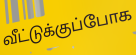
வீட்டுக்குப்போக